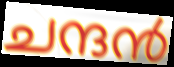
ചന്ദൻ